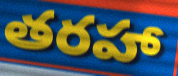
తరహా